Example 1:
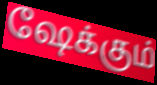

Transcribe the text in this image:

ஷேக்கும்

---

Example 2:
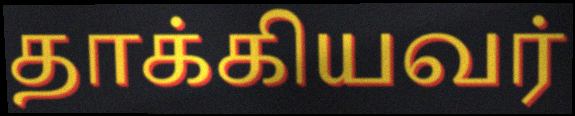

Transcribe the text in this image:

தாக்கியவர்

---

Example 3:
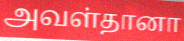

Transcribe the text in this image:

அவள்தானா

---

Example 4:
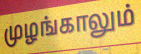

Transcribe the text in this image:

முழங்காலும்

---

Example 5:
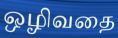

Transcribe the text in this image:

ஒழிவதை